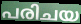
പരിചയ